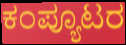
ಕಂಪ್ಯೂಟರ